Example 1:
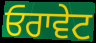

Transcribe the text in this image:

ਓਰਾਵੇਟ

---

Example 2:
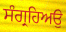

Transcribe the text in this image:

ਸੰਗ੍ਰਹਿਅਉ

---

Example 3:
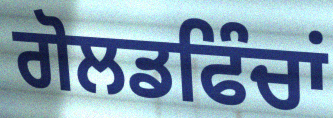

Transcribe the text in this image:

ਗੋਲਡਫਿੰਚਾਂ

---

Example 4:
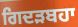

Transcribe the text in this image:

ਗਿਦੜਬਹਾ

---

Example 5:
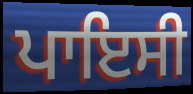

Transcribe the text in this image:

ਪਾਇਸੀ